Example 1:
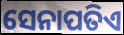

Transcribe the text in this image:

ସେନାପତିଏ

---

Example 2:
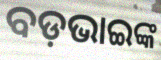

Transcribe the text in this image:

ବଡ଼ଭାଇଙ୍କ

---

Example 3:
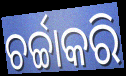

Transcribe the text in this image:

ଚର୍ଚ୍ଚାକରି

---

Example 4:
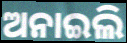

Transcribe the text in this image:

ଅନାଇଲି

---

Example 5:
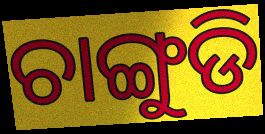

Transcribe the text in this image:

ଚାଙ୍ଗୁଡି